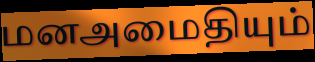
மனஅமைதியும்